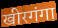
खीरगंगा